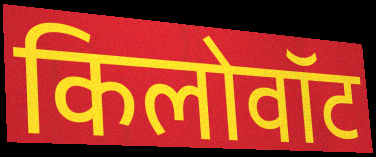
किलोवॉट